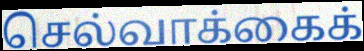
செல்வாக்கைக்